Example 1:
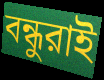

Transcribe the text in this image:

বন্ধুরাই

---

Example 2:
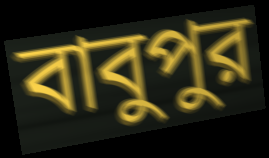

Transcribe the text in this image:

বাবুপুর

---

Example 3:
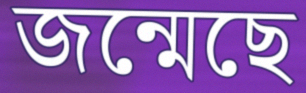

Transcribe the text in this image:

জন্মেছে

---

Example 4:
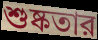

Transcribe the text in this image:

শুষ্কতার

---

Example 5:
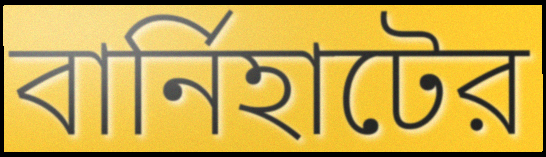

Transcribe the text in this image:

বার্নিহাটের